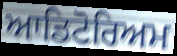
ਆਡਿਟੋਰਿਅਮ